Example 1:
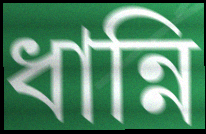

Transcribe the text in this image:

ধান্নি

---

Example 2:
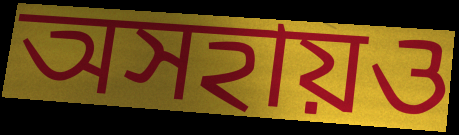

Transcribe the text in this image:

অসহায়ও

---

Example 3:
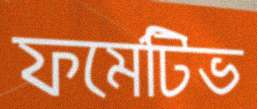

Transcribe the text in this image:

ফর্মেটিভ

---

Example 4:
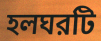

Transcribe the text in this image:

হলঘরটি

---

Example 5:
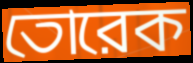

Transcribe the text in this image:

তোরেক